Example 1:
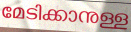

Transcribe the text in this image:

മേടിക്കാനുള്ള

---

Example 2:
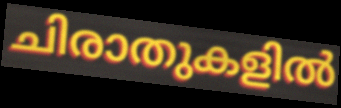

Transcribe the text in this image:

ചിരാതുകളിൽ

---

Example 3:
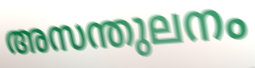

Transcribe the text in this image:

അസന്തുലനം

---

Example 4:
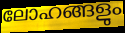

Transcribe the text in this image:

ലോഹങ്ങളും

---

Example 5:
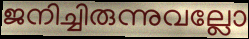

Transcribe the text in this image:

ജനിച്ചിരുന്നുവല്ലോ